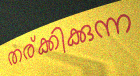
തര്ക്കിക്കുന്ന